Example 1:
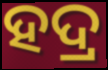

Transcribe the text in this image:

ହଦ୍ର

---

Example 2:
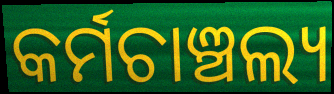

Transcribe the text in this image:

କର୍ମଚାଞ୍ଚଲ୍ୟ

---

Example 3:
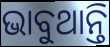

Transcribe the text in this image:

ଭାବୁଥାନ୍ତି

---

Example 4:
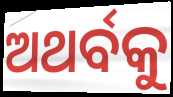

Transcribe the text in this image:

ଅଥର୍ବକୁ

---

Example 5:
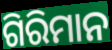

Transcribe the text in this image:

ଗିରିମାନ